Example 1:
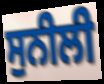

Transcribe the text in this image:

ਸੁਨੀਲੀ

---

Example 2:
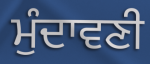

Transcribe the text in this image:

ਮੁੰਦਾਵਣੀ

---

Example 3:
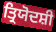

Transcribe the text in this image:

ਤ੍ਰਿਯੋਦਸ਼ੀ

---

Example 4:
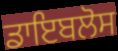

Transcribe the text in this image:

ਡਾਇਬਲੋਸ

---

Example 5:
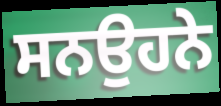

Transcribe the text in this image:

ਸਨਉਹਨੇ